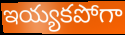
ఇయ్యకపోగా